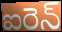
ఐరెన్